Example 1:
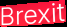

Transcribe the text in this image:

Brexit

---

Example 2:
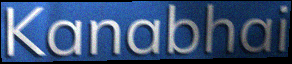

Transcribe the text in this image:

Kanabhai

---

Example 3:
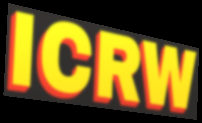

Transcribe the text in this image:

ICRW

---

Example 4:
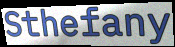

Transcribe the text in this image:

Sthefany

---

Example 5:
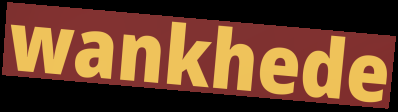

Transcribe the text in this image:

wankhede